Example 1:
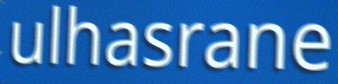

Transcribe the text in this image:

ulhasrane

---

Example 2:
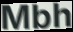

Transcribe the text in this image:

Mbh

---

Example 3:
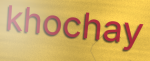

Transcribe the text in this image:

khochay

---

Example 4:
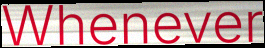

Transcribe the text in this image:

Whenever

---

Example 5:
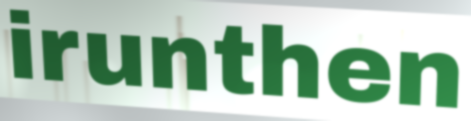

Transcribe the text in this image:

irunthen